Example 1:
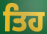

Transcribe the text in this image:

ਤਿਹ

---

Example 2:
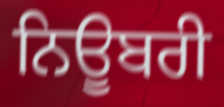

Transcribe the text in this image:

ਨਿਊਬਰੀ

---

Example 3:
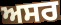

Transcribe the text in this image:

ਅਸਰ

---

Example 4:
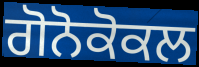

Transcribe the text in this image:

ਗੋਨੋਕੋਕਲ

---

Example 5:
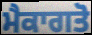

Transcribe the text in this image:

ਮੈਕਾਗਤੋ